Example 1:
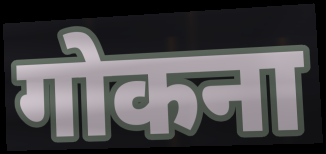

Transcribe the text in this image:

गोकना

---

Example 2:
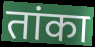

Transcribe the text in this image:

तांका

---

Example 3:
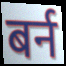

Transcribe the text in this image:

बर्न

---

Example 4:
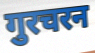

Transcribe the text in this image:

गुरचरन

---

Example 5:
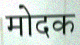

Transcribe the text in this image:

मोदक